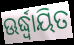
ଊର୍ଦ୍ଧ୍ୱାୟିତ